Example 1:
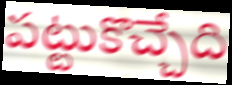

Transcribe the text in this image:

పట్టుకొచ్చేది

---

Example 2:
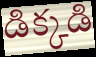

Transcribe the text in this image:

డిక్కడి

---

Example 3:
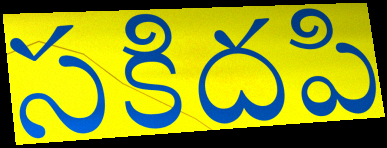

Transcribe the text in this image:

సకిదపి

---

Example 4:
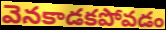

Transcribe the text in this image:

వెనకాడకపోవడం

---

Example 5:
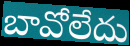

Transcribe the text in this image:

బావోలేదు